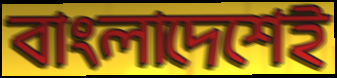
বাংলাদেশেই